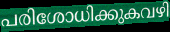
പരിശോധിക്കുകവഴി